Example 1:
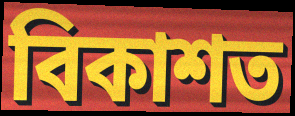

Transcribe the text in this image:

বিকাশত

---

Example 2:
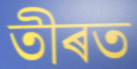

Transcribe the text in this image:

তীৰত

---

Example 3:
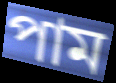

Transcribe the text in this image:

পাম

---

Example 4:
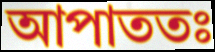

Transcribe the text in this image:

আপাততঃ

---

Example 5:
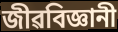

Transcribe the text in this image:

জীৱবিজ্ঞানী